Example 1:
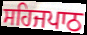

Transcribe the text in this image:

ਸਹਿਜਪਾਠ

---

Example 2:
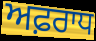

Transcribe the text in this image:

ਅਫ਼ਰਾਧ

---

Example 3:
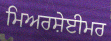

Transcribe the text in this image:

ਮਿਅਰਸ਼ੇਈਮਰ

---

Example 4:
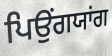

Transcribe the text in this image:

ਪਿਉਂਗਯਾਂਗ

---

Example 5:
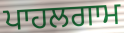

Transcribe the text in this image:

ਪਾਹਲਗਾਮ